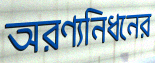
অরণ্যনিধনের